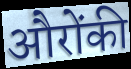
औरोंकी